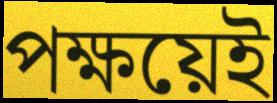
পক্ষয়েই